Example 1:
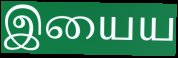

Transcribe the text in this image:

இயைய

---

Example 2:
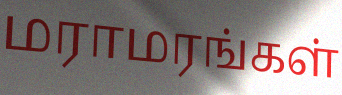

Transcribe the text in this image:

மராமரங்கள்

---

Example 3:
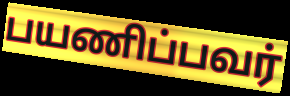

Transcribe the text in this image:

பயணிப்பவர்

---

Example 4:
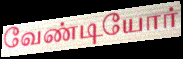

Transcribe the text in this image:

வேண்டியோர்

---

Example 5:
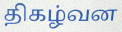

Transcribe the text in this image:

திகழ்வன